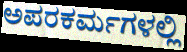
ಅಪರಕರ್ಮಗಳಲ್ಲಿ